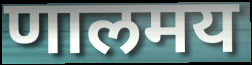
णालमय